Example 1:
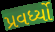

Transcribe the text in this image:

પ્રવર્ધ્યો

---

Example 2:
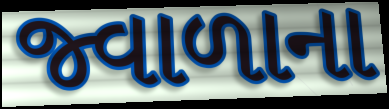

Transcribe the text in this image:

જ્વાળાના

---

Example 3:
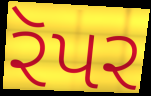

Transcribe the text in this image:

રૅપર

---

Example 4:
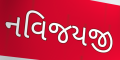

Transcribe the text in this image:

નવિજયજી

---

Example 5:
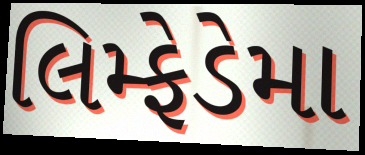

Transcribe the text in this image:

લિમ્ફેડેમા